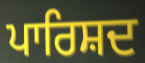
ਪਾਰਿਸ਼ਦ